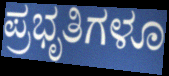
ಪ್ರಭೃತಿಗಳೂ